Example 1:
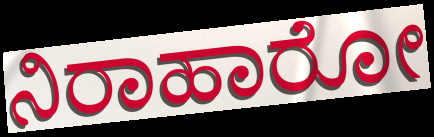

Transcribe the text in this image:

ನಿರಾಹಾರೋ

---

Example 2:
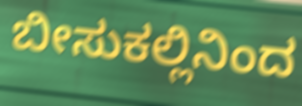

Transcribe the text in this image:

ಬೀಸುಕಲ್ಲಿನಿಂದ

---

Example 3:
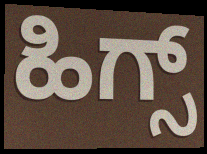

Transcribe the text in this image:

ಹಿಗ್ಸ್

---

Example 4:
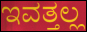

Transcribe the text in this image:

ಇವತ್ತಲ್ಲ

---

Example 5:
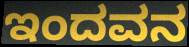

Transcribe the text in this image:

ಇಂದವನ